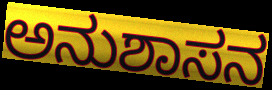
ಅನುಶಾಸನ